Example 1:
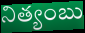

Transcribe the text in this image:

నిత్యంబు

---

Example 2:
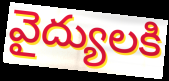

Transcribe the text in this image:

వైద్యులకి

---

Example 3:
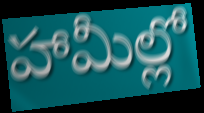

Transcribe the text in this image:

హామీల్లో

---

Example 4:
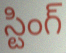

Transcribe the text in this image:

స్టింగ్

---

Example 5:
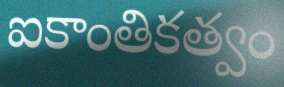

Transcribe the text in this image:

ఐకాంతికత్వం